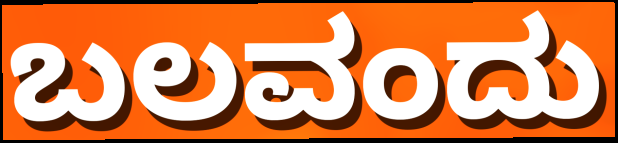
ಬಲವಂದು